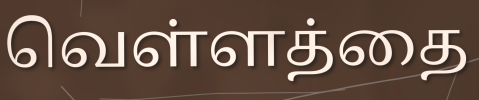
வெள்ளத்தை